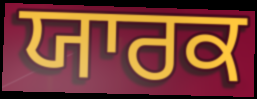
ਯਾਰਕ